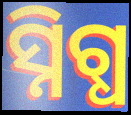
ସ୍ନିଗ୍ଧ